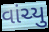
વાંચ્યુ